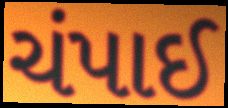
ચંપાઈ